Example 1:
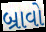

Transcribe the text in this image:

બ્રાવો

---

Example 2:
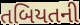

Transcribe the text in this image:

તબિયતની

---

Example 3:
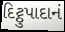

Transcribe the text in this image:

દિટ્ઠુપાદાનં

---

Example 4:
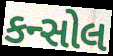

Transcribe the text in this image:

કન્સોલ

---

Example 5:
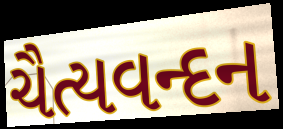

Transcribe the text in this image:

ચૈત્યવન્દન